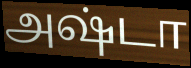
அஷ்டா